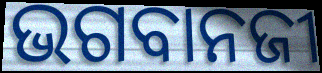
ଭଗବାନଜୀ